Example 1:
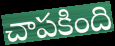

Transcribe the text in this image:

చాపకింది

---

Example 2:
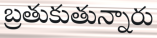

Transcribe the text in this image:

బ్రతుకుతున్నారు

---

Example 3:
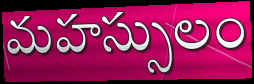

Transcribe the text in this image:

మహస్సులం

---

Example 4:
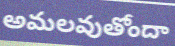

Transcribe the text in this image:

అమలవుతోందా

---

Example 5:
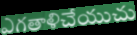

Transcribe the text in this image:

ఎగతాళిచేయుచు